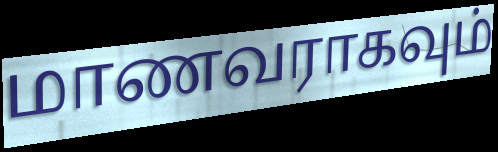
மாணவராகவும்